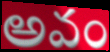
అవం